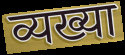
व्यख्या